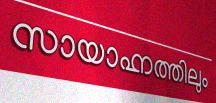
സായാഹ്നത്തിലും